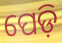
ପେଡ଼ି